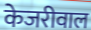
केजरीवाल